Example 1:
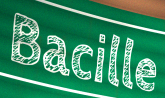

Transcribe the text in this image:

Bacille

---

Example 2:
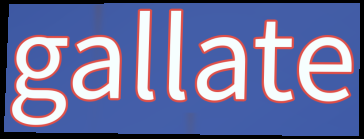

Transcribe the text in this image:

gallate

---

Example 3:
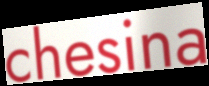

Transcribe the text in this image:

chesina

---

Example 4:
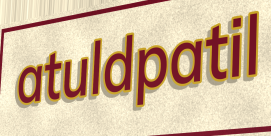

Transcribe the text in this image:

atuldpatil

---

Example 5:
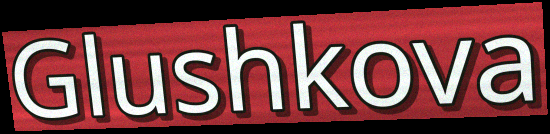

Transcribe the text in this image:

Glushkova